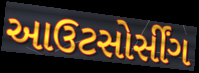
આઉટસોર્સીંગ